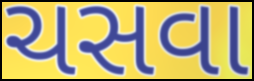
ચસવા